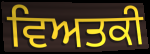
ਵਿਅਤਕੀ